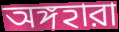
অঙ্গহারা